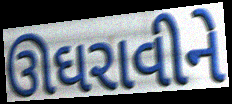
ઊઘરાવીને